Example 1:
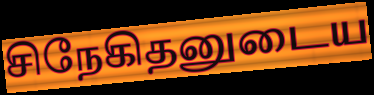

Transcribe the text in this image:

சிநேகிதனுடைய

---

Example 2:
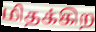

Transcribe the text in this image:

மிதக்கிற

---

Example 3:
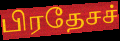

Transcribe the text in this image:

பிரதேசச்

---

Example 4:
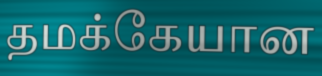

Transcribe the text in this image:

தமக்கேயான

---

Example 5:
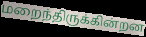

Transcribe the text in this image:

மறைந்திருக்கின்றன